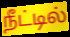
நீட்டில்